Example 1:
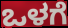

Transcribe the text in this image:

ಒಳಗೆ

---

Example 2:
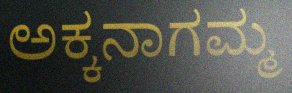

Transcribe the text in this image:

ಅಕ್ಕನಾಗಮ್ಮ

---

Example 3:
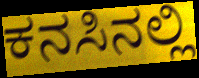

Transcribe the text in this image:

ಕನಸಿನಲ್ಲಿ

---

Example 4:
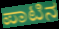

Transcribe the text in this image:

ಪಾಟಿನ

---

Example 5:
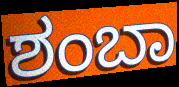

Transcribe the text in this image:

ಶಂಬಾ